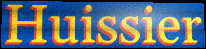
Huissier